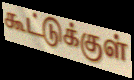
கூட்டுக்குள்